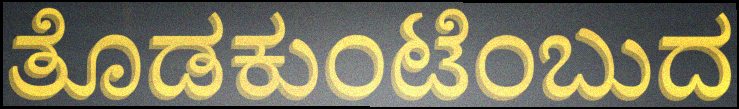
ತೊಡಕುಂಟೆಂಬುದ